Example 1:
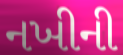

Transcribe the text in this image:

નખીની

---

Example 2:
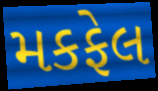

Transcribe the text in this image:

મકફેલ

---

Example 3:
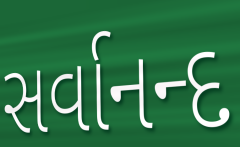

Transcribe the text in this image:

સર્વાનન્દ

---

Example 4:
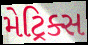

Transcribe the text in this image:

મેટ્રિક્સ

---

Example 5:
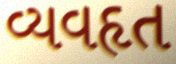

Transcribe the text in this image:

વ્યવહૃત